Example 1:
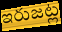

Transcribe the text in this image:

ఇరుజట్ల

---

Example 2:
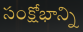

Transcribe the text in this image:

సంక్షోభాన్ని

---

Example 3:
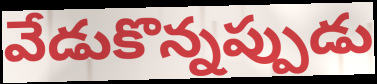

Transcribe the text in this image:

వేడుకొన్నప్పుడు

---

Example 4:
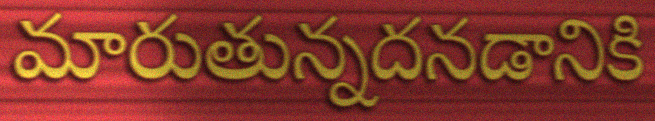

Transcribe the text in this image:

మారుతున్నదనడానికి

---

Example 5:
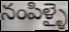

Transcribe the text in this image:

నంపిళ్ళై